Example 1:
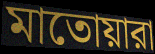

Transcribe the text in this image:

মাতোয়ারা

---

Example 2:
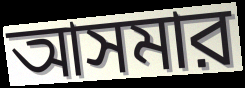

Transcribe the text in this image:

আসমার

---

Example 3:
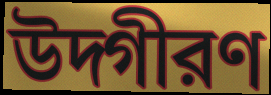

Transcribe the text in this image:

উদ্গীরণ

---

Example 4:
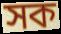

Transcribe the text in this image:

সক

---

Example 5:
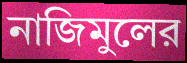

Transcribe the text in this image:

নাজিমুলের